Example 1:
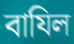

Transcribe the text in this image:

বাযিল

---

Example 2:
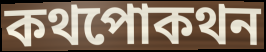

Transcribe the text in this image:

কথপোকথন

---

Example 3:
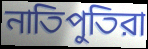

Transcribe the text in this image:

নাতিপুতিরা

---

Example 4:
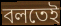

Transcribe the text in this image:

বলতেই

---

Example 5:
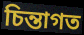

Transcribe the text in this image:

চিন্তাগত